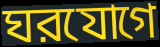
ঘরযোগে